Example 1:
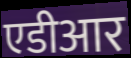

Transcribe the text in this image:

एडीआर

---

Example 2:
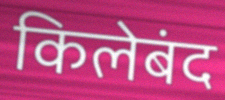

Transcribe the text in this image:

किलेबंद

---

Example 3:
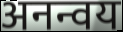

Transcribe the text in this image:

अनन्वय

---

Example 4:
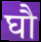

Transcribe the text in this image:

घौ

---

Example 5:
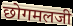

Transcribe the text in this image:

छोगमलजी